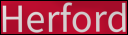
Herford